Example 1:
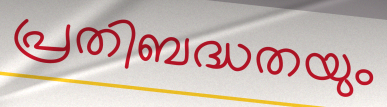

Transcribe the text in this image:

പ്രതിബദ്ധതയും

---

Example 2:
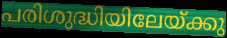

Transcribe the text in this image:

പരിശുദ്ധിയിലേയ്ക്കു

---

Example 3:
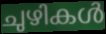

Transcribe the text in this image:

ചുഴികൾ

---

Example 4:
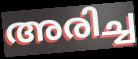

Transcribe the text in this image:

അരിച്ച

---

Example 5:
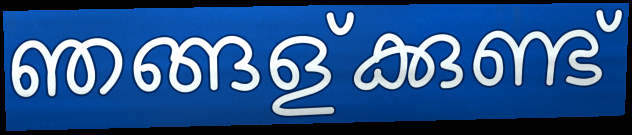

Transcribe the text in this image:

ഞങ്ങള്ക്കുണ്ട്